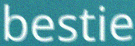
bestie